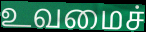
உவமைச்